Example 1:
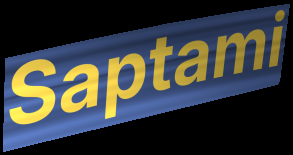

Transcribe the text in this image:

Saptami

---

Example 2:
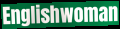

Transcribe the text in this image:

Englishwoman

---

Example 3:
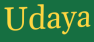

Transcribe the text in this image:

Udaya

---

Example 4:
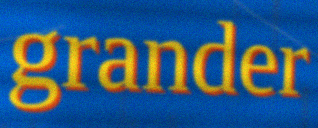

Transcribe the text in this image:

grander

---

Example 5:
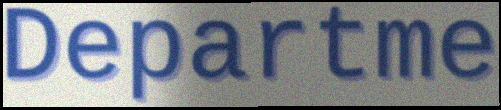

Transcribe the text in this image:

Departme